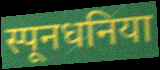
स्पूनधनिया